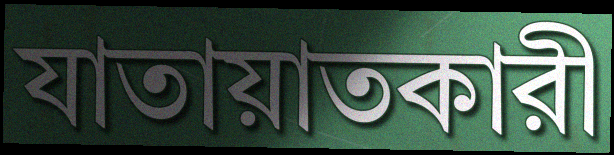
যাতায়াতকারী